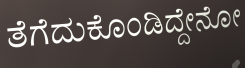
ತೆಗೆದುಕೊಂಡಿದ್ದೇನೋ